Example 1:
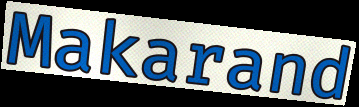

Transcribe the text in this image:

Makarand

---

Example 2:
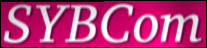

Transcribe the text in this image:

SYBCom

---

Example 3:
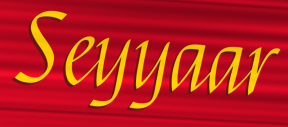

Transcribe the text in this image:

Seyyaar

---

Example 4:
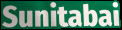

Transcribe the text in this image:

Sunitabai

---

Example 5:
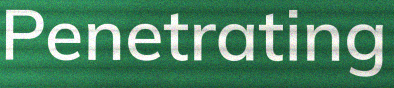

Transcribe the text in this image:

Penetrating